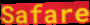
Safare